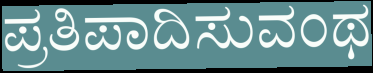
ಪ್ರತಿಪಾದಿಸುವಂಥ